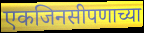
एकजिनसीपणाच्या